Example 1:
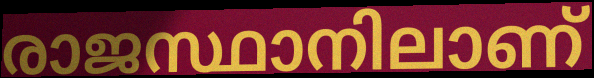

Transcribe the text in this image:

രാജസ്ഥാനിലാണ്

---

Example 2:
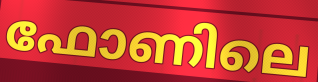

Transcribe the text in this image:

ഫോണിലെ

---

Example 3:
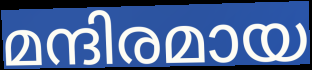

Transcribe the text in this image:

മന്ദിരമായ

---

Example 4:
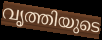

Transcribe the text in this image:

വൃത്തിയുടെ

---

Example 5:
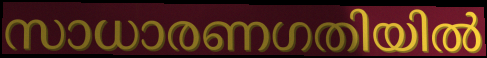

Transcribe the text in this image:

സാധാരണഗതിയിൽ